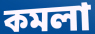
কমলা